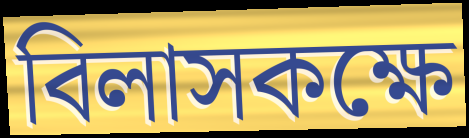
বিলাসকক্ষে